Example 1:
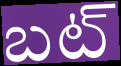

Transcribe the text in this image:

బట్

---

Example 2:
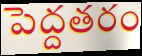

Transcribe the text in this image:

పెద్దతరం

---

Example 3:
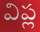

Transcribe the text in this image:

విప్ల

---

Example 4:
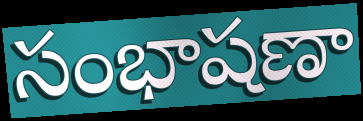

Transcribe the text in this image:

సంభాషణా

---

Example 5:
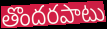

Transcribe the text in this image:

తొందరపాటు